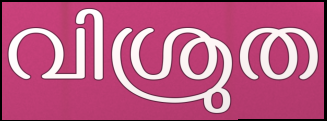
വിശ്രുത